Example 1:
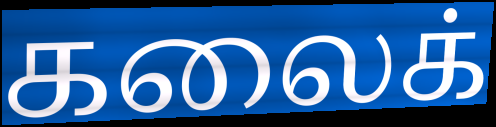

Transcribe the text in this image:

கலைக்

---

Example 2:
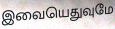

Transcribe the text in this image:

இவையெதுவுமே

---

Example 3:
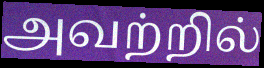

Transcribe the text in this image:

அவற்றில்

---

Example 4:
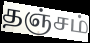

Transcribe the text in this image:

தஞ்சம்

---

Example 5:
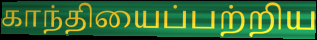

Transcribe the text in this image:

காந்தியைப்பற்றிய